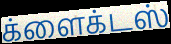
க்ளைக்டஸ்